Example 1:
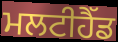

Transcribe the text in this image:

ਮਲਟੀਹੈੱਡ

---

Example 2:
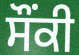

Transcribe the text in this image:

ਸੌਂਕੀ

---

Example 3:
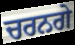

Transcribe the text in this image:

ਚਰਨਗੇ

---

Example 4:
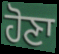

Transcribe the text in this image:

ਹੋਣਾ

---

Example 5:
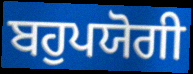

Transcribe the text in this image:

ਬਹੁਪਯੋਗੀ